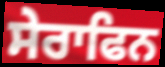
ਸੇਰਾਫਿਨ